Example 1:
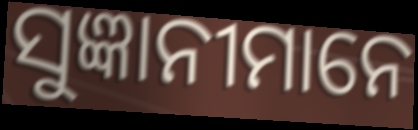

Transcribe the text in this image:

ସୁଜ୍ଞାନୀମାନେ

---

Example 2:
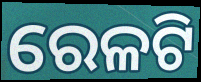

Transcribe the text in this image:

ରେଳଟି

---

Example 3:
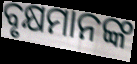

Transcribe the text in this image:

ବୃକ୍ଷମାନଙ୍କ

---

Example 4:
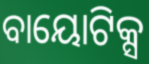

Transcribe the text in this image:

ବାୟୋଟିକ୍ସ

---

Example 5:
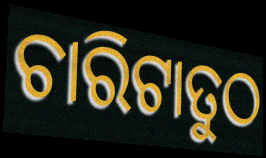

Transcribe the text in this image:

ଚାରିଟାତୁଠ